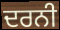
ਦਰਨੀ